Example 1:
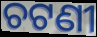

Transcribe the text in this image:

ଚଟଣୀ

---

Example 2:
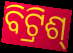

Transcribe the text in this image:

ବିଟ୍ରିଶ୍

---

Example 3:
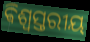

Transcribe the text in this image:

ଵିଶ୍ୱସ୍ତରୀୟ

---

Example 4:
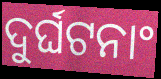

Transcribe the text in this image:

ଦୁର୍ଘଟନାଂ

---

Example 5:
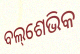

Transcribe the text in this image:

ବଲ୍‌ଶେଭିକ